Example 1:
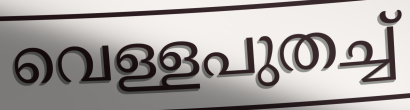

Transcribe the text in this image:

വെള്ളപുതച്ച്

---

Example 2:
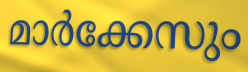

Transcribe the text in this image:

മാർക്കേസും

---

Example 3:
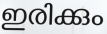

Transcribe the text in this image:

ഇരിക്കും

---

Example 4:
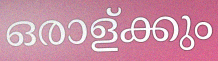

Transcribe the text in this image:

ഒരാള്ക്കും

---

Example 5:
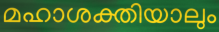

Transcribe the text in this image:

മഹാശക്തിയാലും